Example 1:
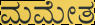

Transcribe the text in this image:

ಮಮೇತ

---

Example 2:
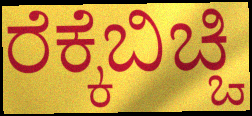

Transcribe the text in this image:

ರೆಕ್ಕೆಬಿಚ್ಚಿ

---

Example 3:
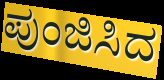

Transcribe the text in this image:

ಪುಂಜಿಸಿದ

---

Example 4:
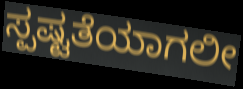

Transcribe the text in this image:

ಸ್ಪಷ್ಟತೆಯಾಗಲೀ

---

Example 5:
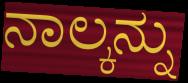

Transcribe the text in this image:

ನಾಲ್ಕನ್ನು